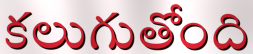
కలుగుతోంది